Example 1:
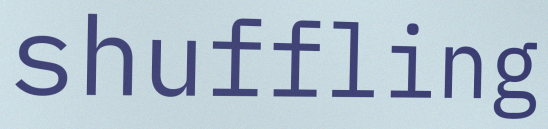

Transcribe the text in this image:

shuffling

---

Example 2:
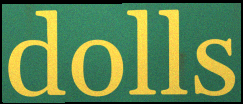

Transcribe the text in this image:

dolls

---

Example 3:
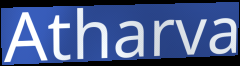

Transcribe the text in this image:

Atharva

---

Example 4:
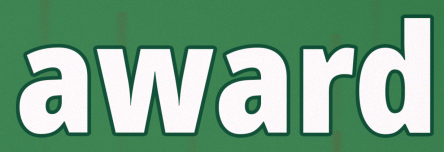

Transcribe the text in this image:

award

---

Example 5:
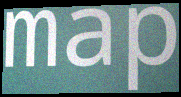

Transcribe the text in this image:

map